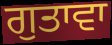
ਗੁਤਾਵਾ